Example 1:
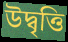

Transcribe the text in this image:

উদ্বৃত্তি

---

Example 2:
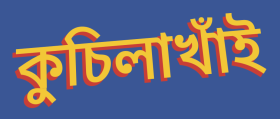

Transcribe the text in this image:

কুচিলাখাঁই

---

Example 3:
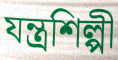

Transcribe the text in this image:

যন্ত্রশিল্পী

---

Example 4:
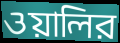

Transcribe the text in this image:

ওয়ালির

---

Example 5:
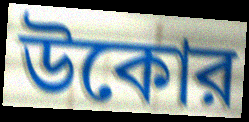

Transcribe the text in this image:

উকোর